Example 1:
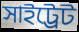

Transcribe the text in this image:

সাইট্রেট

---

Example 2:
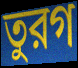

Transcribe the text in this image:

তুরগ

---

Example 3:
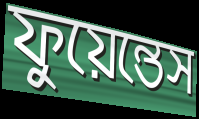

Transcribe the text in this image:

ফুয়েন্তেস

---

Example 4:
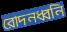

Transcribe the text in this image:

রোদনধ্বনি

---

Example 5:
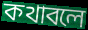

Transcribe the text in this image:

কথাবলে